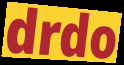
drdo